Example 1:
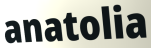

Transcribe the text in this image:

anatolia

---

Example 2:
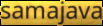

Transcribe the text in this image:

samajava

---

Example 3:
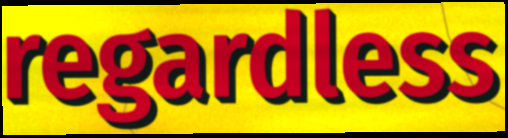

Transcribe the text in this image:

regardless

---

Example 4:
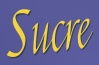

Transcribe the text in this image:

Sucre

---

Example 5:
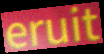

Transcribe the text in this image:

eruit